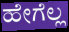
ಹೇಗೆಲ್ಲ